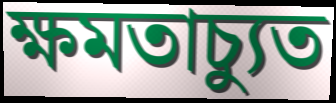
ক্ষমতাচ্যুত